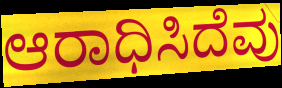
ಆರಾಧಿಸಿದೆವು